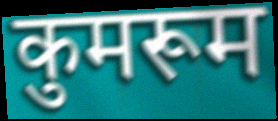
कुमरूम